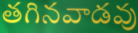
తగినవాడవు